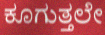
ಕೂಗುತ್ತಲೇ